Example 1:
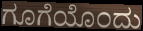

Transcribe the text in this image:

ಗೂಗೆಯೊಂದು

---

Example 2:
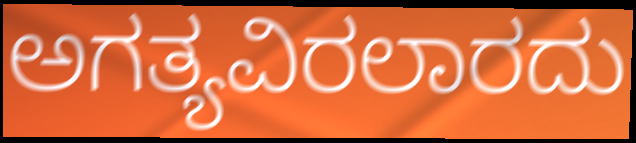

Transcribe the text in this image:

ಅಗತ್ಯವಿರಲಾರದು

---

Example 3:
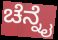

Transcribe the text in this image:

ಚೆನ್ನೈ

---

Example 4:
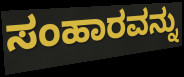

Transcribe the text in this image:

ಸಂಹಾರವನ್ನು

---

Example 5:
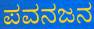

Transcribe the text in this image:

ಪವನಜನ